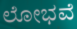
ಲೋಭವೆ